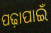
ପଢ଼ାପାଇଁ